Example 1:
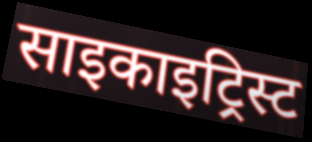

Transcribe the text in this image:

साइकाइट्रिस्ट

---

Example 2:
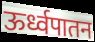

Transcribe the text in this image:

ऊर्ध्वपातन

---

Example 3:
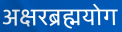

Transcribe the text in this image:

अक्षरब्रह्मयोग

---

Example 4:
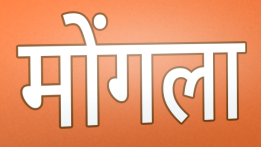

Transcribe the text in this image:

मोंगला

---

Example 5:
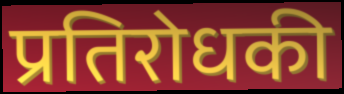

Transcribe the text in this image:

प्रतिरोधकी